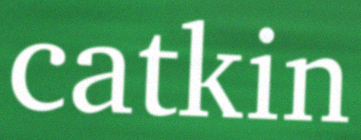
catkin